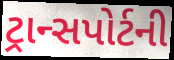
ટ્રાન્સપોર્ટની